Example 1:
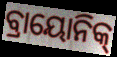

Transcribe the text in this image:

ବ୍ରାୟୋନିକ୍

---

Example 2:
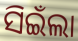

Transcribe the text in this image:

ସିଇଁଲା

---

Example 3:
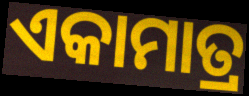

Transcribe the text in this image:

ଏକାମାତ୍ର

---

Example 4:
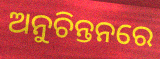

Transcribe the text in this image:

ଅନୁଚିନ୍ତନରେ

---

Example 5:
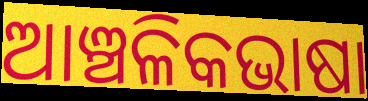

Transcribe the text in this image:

ଆଞ୍ଚଳିକଭାଷା